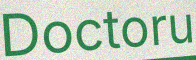
Doctoru